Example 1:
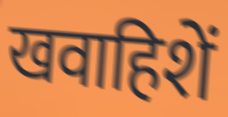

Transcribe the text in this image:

खवाहिशें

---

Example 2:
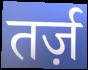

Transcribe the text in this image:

तर्ज़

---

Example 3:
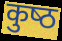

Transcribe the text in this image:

कुष्‍ठ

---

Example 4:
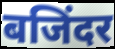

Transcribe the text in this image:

बजिंदर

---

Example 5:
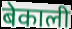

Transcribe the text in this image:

बेकाली